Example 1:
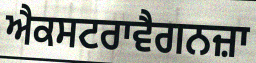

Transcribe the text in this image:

ਐਕਸਟਰਾਵੈਗਨਜ਼ਾ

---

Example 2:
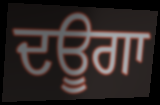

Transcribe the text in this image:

ਦਊਗਾ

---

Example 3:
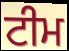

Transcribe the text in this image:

ਟੀਮ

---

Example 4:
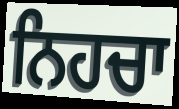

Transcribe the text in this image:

ਨਿਹਚਾ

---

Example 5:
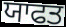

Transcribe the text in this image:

ਯਾਫਤ